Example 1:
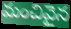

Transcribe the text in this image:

మంచివైన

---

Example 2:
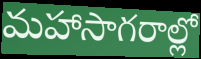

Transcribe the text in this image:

మహాసాగరాల్లో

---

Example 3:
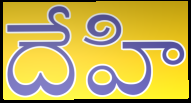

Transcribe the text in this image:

దేహి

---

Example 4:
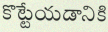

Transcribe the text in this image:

కొట్టేయడానికి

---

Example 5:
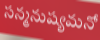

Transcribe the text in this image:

సన్మనుష్యమనో